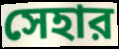
সেহার